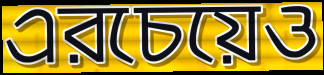
এরচেয়েও